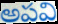
అపవి